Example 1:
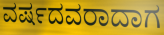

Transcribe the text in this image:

ವರ್ಷದವರಾದಾಗ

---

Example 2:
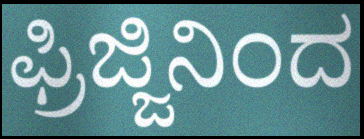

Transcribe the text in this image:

ಫ್ರಿಜ್ಜಿನಿಂದ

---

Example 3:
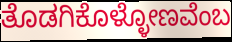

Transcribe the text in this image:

ತೊಡಗಿಕೊಳ್ಳೋಣವೆಂಬ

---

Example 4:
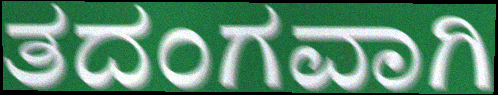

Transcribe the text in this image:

ತದಂಗವಾಗಿ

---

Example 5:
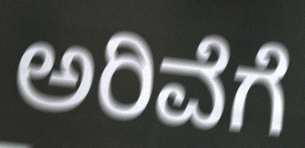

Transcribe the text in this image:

ಅರಿವೆಗೆ